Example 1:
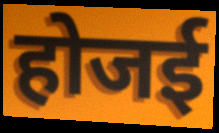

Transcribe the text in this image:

होजई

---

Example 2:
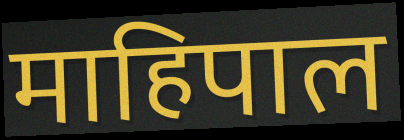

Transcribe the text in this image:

माहिपाल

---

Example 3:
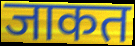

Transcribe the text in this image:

जाकत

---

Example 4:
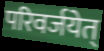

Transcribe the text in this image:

परिवर्जयेत्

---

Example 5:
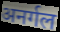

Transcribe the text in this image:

अनर्गल